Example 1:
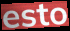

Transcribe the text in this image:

esto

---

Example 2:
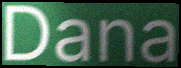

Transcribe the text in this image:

Dana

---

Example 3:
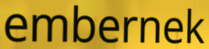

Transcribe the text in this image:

embernek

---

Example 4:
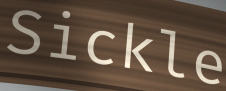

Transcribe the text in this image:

Sickle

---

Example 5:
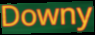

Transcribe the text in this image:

Downy